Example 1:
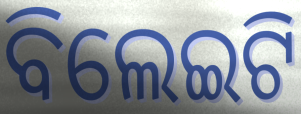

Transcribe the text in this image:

ବିଲେଇଟି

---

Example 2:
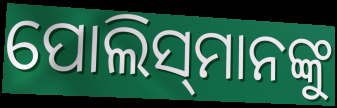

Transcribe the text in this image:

ପୋଲିସ୍‌ମାନଙ୍କୁ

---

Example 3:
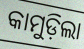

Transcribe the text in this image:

କାମୁଡ଼ିଲା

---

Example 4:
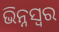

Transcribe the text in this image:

ଭିନ୍ନସ୍ବର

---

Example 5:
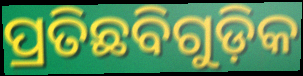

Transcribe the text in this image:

ପ୍ରତିଛବିଗୁଡ଼ିକ